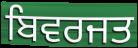
ਬਿਵਰਜਤ